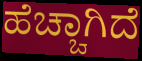
ಹೆಚ್ಚಾಗಿದೆ